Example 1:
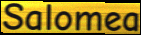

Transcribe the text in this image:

Salomea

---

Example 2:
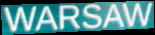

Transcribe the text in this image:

WARSAW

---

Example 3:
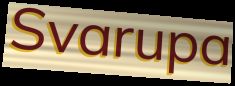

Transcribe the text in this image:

Svarupa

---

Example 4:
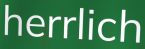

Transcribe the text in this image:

herrlich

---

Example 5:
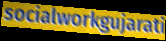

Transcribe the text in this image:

socialworkgujarati